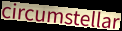
circumstellar